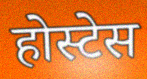
होस्टेस